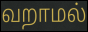
வறாமல்